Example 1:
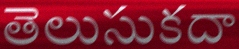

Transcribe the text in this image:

తెలుసుకదా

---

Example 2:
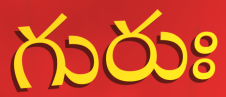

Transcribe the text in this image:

గురుః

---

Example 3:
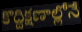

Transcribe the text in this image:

కొద్దిక్షణాల్లోనే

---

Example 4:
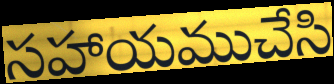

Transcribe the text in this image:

సహాయముచేసి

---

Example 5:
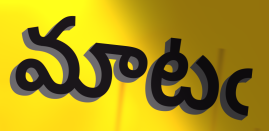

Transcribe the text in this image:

మాటఁ